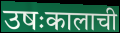
उषःकालाची